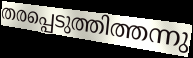
തരപ്പെടുത്തിത്തന്നു